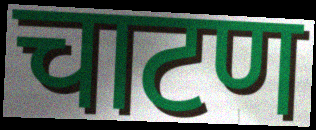
चाटण